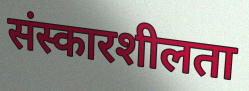
संस्कारशीलता